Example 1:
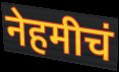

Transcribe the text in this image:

नेहमीचं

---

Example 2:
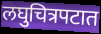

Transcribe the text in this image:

लघुचित्रपटात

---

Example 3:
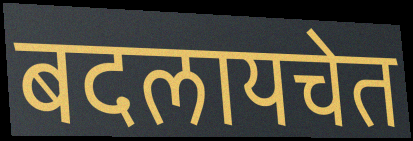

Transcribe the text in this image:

बदलायचेत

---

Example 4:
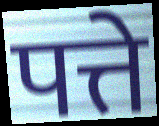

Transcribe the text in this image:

पत्ते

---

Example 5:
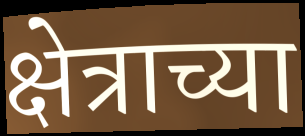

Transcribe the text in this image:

क्षेत्राच्या